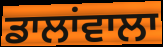
ਡਾਲਾਂਵਾਲਾ